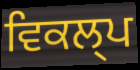
ਵਿਕਲ੍ਪ